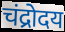
चंद्रोदय